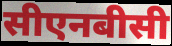
सीएनबीसी